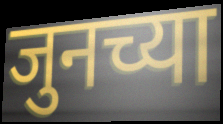
जुनच्या